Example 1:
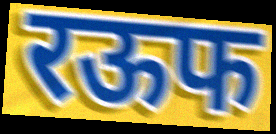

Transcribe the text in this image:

रऊफ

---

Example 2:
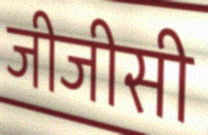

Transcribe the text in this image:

जीजीसी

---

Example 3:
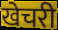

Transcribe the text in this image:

खेचरी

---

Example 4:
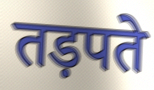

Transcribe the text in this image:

तड़पते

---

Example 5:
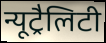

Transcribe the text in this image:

न्यूट्रैलिटी